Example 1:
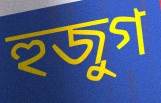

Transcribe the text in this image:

হুজুগ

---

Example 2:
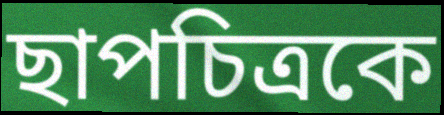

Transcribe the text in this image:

ছাপচিত্রকে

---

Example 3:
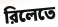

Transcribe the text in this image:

রিলেতে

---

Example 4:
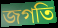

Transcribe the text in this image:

জগতি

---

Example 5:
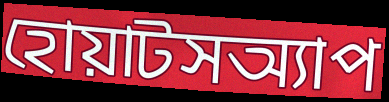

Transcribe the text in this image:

হোয়াটসঅ্যাপ